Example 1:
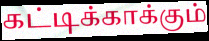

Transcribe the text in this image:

கட்டிக்காக்கும்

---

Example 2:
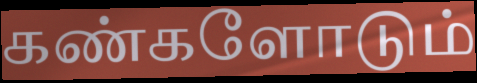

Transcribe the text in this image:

கண்களோடும்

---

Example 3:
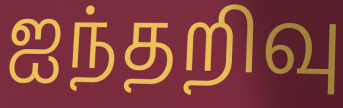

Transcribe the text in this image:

ஐந்தறிவு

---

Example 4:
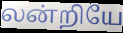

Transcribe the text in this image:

லன்றியே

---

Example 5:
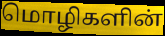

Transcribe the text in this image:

மொழிகளின்